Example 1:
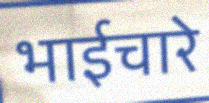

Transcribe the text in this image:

भाईचारे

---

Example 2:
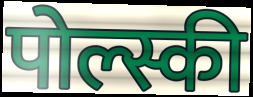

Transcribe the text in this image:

पोल्स्की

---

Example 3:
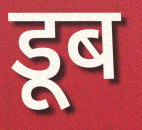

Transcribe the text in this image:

डूब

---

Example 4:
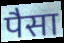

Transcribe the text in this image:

पैसा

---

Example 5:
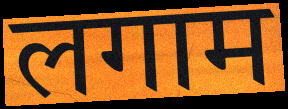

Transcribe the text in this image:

लगाम